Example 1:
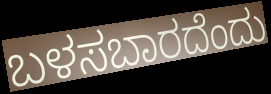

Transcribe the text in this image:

ಬಳಸಬಾರದೆಂದು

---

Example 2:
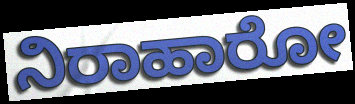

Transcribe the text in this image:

ನಿರಾಹಾರೋ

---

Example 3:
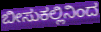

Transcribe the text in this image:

ಬೀಸುಕಲ್ಲಿನಿಂದ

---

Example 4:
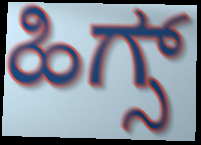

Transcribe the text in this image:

ಹಿಗ್ಸ್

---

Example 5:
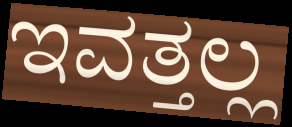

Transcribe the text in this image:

ಇವತ್ತಲ್ಲ